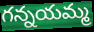
గన్నయమ్మ